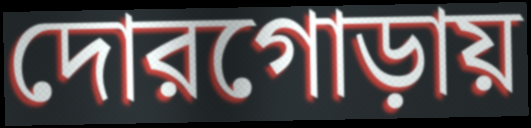
দোরগোড়ায়